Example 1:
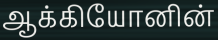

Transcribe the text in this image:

ஆக்கியோனின்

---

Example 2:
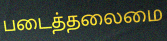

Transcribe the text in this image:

படைத்தலைமை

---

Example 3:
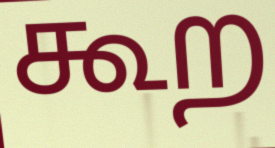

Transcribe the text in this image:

கூற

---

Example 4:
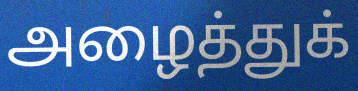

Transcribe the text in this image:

அழைத்துக்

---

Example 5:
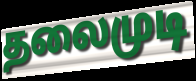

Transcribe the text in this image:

தலைமுடி